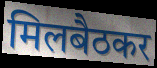
मिलबैठकर